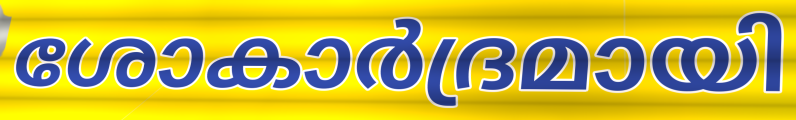
ശോകാർദ്രമായി